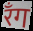
रॅंग